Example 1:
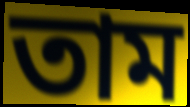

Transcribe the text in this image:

তাম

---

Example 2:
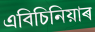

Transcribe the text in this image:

এবিচিনিয়াৰ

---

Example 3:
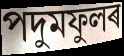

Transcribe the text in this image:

পদুমফুলৰ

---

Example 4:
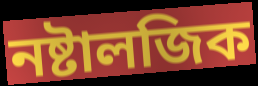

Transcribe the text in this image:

নষ্টালজিক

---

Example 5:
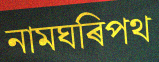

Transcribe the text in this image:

নামঘৰিপথ